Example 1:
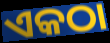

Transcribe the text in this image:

ଏକଠା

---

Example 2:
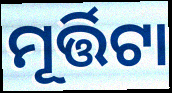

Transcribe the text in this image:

ମୂର୍ତ୍ତିଟା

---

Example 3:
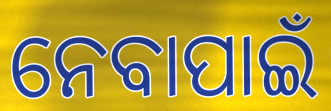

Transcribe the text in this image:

ନେବାପାଇଁ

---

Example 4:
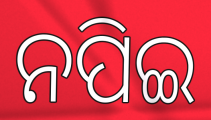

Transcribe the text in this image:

ନପିଇ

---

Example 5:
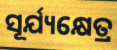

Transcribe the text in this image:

ସୂର୍ଯ୍ୟକ୍ଷେତ୍ର